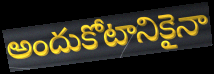
అందుకోటానికైనా